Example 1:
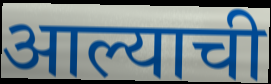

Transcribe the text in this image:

आल्याची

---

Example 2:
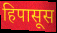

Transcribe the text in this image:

हिपासूस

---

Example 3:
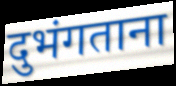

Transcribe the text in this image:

दुभंगताना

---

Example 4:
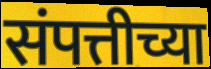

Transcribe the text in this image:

संपत्तीच्या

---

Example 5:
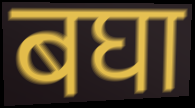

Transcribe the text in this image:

बघा